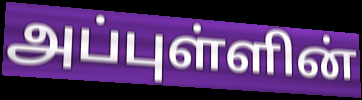
அப்புள்ளின்